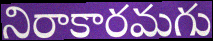
నిరాకారమగు